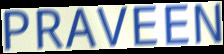
PRAVEEN